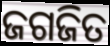
ଜଗଜିତ